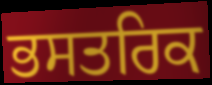
ਭਸਤਰਿਕ